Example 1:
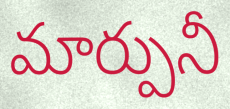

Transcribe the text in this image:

మార్పునీ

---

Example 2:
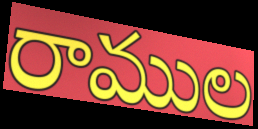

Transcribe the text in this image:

రాముల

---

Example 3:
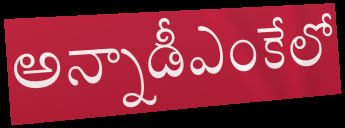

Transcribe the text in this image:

అన్నాడీఎంకేలో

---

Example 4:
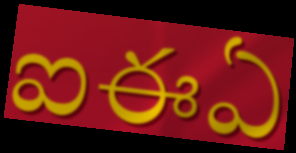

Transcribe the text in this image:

ఐఈఏ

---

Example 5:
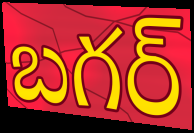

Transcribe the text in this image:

బగర్